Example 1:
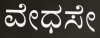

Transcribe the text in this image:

ವೇಧಸೇ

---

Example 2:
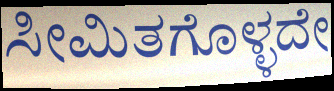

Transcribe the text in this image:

ಸೀಮಿತಗೊಳ್ಳದೇ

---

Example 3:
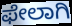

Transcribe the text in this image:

ಫೇಲಾಗಿ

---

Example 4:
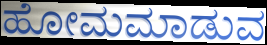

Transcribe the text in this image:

ಹೋಮಮಾಡುವ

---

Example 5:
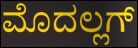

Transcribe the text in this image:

ಮೊದಲ್ಲಗ್